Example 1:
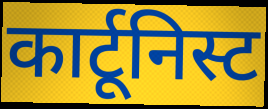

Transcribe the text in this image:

कार्टूनिस्ट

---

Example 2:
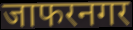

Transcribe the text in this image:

जाफरनगर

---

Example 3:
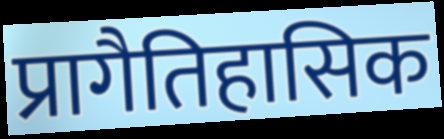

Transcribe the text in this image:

प्रागैतिहासिक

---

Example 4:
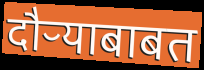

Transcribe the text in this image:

दौऱ्याबाबत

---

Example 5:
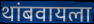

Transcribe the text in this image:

थांबवायला